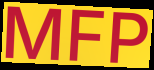
MFP